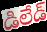
డిలేడ్